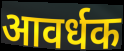
आवर्धक